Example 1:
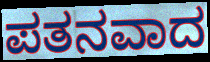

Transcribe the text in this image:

ಪತನವಾದ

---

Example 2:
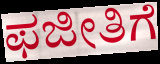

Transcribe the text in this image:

ಫಜೀತಿಗೆ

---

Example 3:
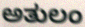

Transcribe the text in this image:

ಅತುಲಂ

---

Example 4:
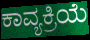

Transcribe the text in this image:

ಕಾವ್ಯಕ್ರಿಯೆ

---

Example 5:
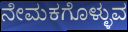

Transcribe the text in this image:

ನೇಮಕಗೊಳ್ಳುವ